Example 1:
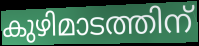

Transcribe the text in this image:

കുഴിമാടത്തിന്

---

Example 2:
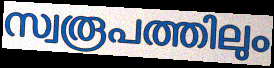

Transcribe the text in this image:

സ്വരൂപത്തിലും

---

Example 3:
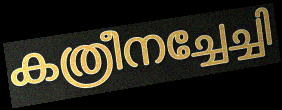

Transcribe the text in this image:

കത്രീനച്ചേച്ചി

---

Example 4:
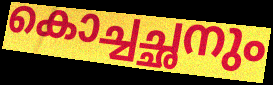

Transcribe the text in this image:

കൊച്ചച്ഛനും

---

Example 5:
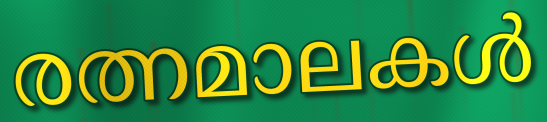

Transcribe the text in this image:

രത്നമാലകൾ